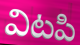
విటపి